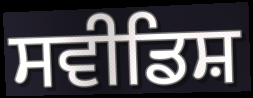
ਸਵੀਡਿਸ਼